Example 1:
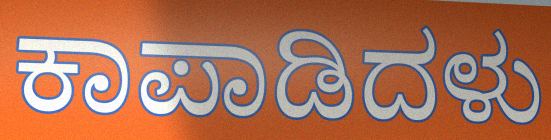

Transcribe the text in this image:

ಕಾಪಾಡಿದಳು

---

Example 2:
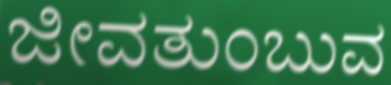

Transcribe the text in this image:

ಜೀವತುಂಬುವ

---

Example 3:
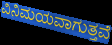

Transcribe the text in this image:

ವಿನಿಮಯವಾಗುತ್ತವೆ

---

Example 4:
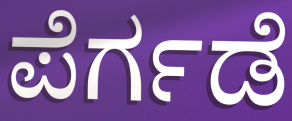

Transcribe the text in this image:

ಪೆರ್ಗಡೆ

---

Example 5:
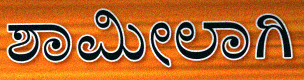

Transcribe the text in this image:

ಶಾಮೀಲಾಗಿ